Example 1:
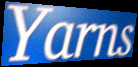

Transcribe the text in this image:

Yarns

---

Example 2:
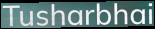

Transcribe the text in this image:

Tusharbhai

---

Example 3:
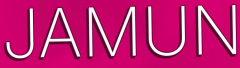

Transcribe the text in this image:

JAMUN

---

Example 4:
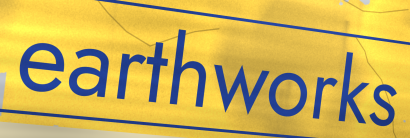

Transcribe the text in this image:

earthworks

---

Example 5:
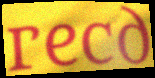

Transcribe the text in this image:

recd